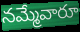
నమ్మేవారూ